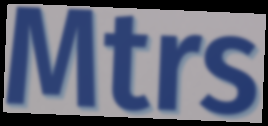
Mtrs